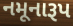
નમૂનારૂપ